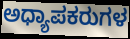
ಅಧ್ಯಾಪಕರುಗಳ